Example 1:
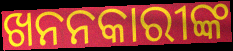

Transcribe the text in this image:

ଖନନକାରୀଙ୍କ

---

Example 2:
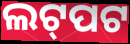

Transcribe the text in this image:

ଲଟ୍‌ପଟ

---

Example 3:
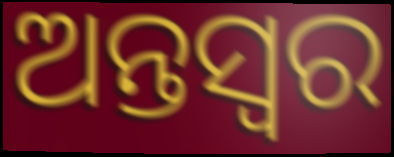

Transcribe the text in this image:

ଅନ୍ତସ୍ୱର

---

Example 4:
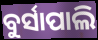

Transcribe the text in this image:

ବୁର୍ସାପାଲି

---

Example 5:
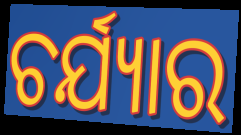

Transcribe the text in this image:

ଚର୍ଯ୍ୟାର